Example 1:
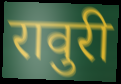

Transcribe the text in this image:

रावुरी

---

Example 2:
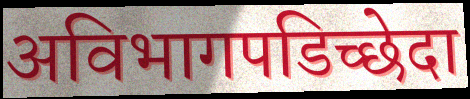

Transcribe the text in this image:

अविभागपडिच्छेदा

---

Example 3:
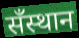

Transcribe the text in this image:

सँस्थान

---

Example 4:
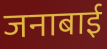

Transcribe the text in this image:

जनाबाई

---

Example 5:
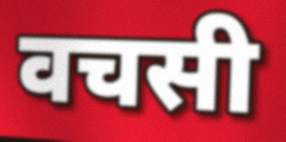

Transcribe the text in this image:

वचसी